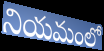
నియమంలో